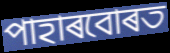
পাহাৰবোৰত